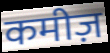
कमीज़